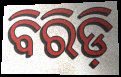
ବିରିଡ଼ି